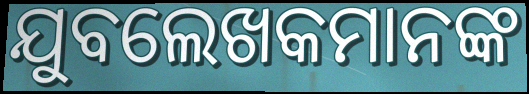
ଯୁବଲେଖକମାନଙ୍କ